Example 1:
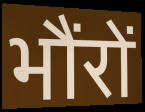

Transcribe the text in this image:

भौंरों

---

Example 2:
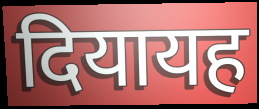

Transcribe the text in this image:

दियायह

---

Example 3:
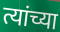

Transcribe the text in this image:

त्यांच्या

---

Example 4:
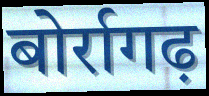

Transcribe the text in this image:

बोर्रागढ़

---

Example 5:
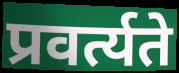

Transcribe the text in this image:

प्रवर्त्यते